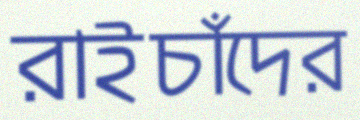
রাইচাঁদের